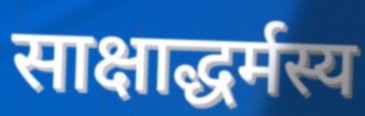
साक्षाद्धर्मस्य